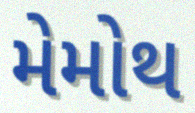
મેમોથ